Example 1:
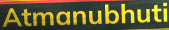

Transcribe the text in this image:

Atmanubhuti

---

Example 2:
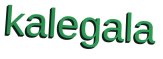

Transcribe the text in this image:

kalegala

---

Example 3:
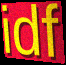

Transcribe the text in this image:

idf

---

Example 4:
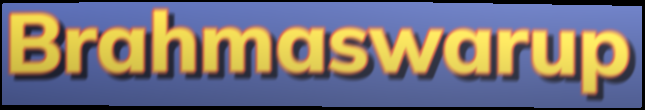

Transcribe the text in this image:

Brahmaswarup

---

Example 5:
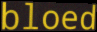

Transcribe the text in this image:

bloed